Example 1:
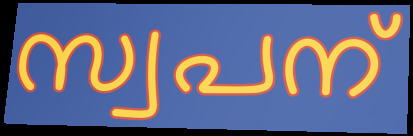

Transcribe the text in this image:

സ്വപന്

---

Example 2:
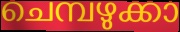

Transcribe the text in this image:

ചെമ്പഴുക്കാ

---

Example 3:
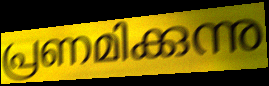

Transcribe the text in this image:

പ്രണമിക്കുന്നു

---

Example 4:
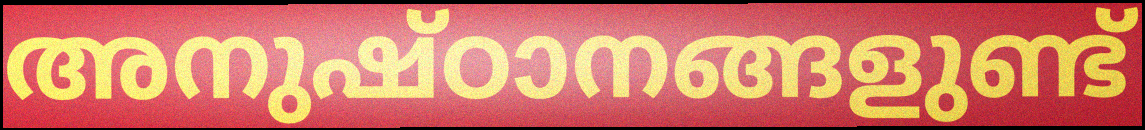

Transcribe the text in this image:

അനുഷ്ഠാനങ്ങളുണ്ട്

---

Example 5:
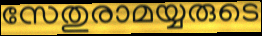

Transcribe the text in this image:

സേതുരാമയ്യരുടെ